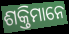
ଶକ୍ତିମାନେ